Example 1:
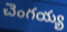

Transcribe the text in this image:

చెంగయ్య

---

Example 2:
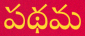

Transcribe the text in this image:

పథమ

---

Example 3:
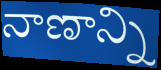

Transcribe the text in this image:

నాణాన్ని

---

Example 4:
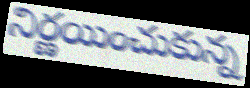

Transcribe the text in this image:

నిర్ణయించుకున్న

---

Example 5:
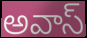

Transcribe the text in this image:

అవాస్